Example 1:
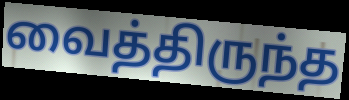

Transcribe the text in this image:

வைத்திருந்த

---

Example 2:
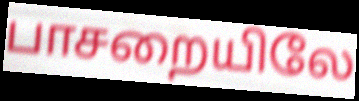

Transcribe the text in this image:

பாசறையிலே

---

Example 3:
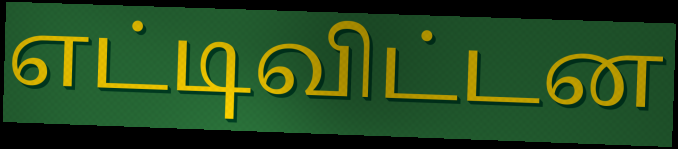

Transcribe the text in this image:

எட்டிவிட்டன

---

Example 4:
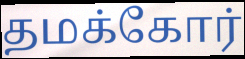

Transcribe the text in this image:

தமக்கோர்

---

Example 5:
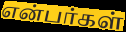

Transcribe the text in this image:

என்பர்கள்